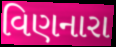
વિણનારા